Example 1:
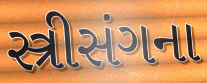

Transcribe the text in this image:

સ્ત્રીસંગના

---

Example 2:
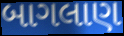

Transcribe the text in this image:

બાગલાણ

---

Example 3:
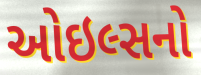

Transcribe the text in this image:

ઓઇલ્સનો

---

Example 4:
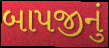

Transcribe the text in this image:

બાપજીનું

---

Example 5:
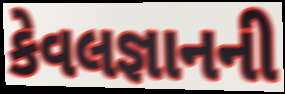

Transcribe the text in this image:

કેવલજ્ઞાનની